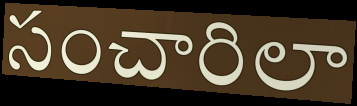
సంచారిలా